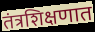
तंत्रशिक्षणात